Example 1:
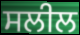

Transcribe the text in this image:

ਸਲੀਲ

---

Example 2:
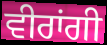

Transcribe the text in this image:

ਵੀਰਾਂਗੀ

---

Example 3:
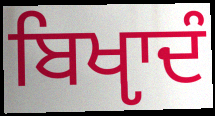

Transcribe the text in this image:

ਬਿਖੵਾਦੰ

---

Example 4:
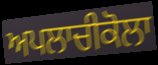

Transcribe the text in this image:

ਅਪਲਾਚੀਕੋਲਾ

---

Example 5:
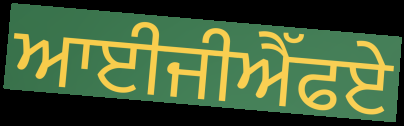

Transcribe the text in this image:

ਆਈਜੀਐੱਫਏ